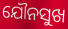
ଯୌନସୁଖ